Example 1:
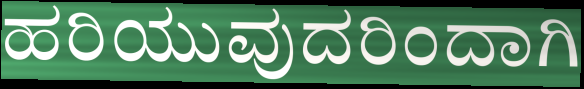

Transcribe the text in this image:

ಹರಿಯುವುದರಿಂದಾಗಿ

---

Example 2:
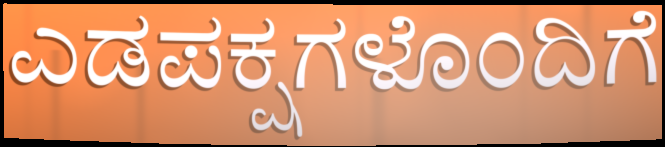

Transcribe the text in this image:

ಎಡಪಕ್ಷಗಳೊಂದಿಗೆ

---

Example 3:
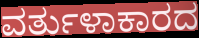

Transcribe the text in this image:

ವರ್ತುಳಾಕಾರದ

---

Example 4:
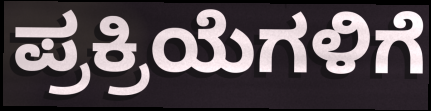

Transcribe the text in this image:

ಪ್ರಕ್ರಿಯೆಗಳಿಗೆ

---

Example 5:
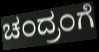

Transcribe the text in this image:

ಚಂದ್ರಂಗೆ